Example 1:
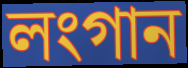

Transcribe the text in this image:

লংগান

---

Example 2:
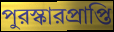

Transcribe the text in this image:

পুরস্কারপ্রাপ্তি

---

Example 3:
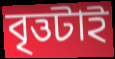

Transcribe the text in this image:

বৃত্তটাই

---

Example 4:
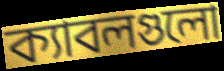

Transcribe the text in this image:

ক্যাবলগুলো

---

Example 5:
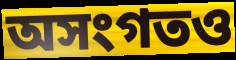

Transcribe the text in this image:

অসংগতও